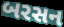
બરસન